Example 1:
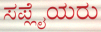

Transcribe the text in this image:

ಸಪ್ಲೈಯರು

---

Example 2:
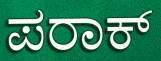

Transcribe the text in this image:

ಪರಾಕ್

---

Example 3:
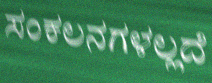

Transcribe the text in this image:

ಸಂಕಲನಗಳಲ್ಲದೆ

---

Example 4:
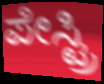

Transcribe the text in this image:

ಪೇಸ್ಟ್ರಿ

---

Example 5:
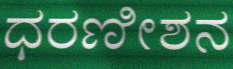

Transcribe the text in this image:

ಧರಣೀಶನ